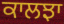
ਕਾਲਝਾ